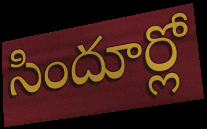
సిందూర్లో